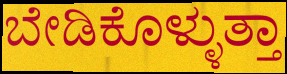
ಬೇಡಿಕೊಳ್ಳುತ್ತಾ